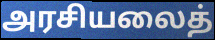
அரசியலைத்